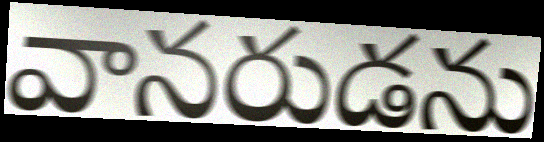
వానరుడను